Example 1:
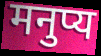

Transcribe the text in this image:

मनुप्य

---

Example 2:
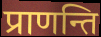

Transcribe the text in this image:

प्राणन्ति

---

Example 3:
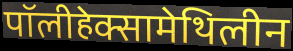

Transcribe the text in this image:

पॉलीहेक्सामेथिलीन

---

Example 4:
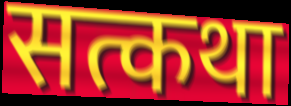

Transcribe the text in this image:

सत्कथा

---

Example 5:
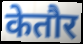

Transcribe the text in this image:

केतौर